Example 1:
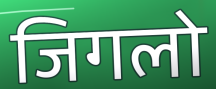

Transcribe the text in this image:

जिगलो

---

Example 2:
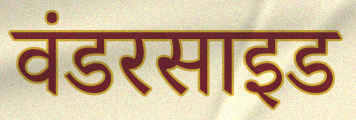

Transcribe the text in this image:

वंडरसाइड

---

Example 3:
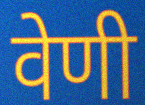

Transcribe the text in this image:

वेणी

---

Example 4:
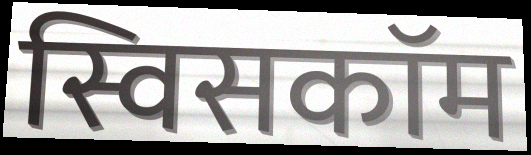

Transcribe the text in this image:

स्विसकॉम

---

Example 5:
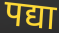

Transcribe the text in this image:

पद्या